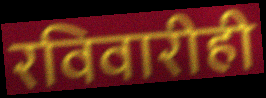
रविवारीही